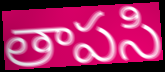
తాపసి